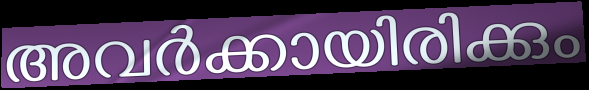
അവർക്കായിരിക്കും